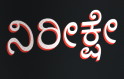
ನಿರೀಕ್ಷೇ